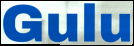
Gulu